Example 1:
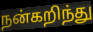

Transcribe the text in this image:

நன்கறிந்து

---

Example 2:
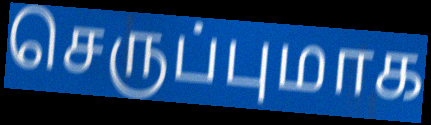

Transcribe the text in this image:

செருப்புமாக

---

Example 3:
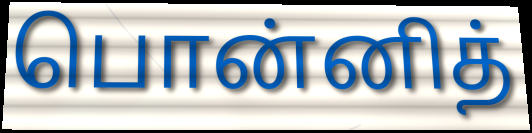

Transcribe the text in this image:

பொன்னித்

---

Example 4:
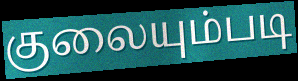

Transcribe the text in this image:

குலையும்படி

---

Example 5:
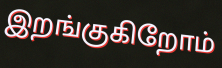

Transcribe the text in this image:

இறங்குகிறோம்